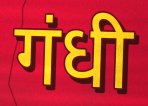
गंधी